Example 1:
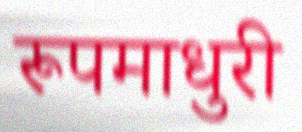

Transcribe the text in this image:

रूपमाधुरी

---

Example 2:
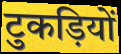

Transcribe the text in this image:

टुकड़ियों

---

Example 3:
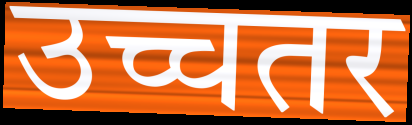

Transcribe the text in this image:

उच्चतर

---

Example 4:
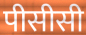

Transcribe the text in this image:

पीसीसी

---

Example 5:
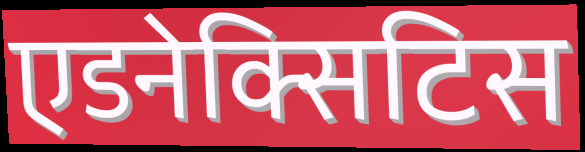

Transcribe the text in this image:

एडनेक्सिटिस